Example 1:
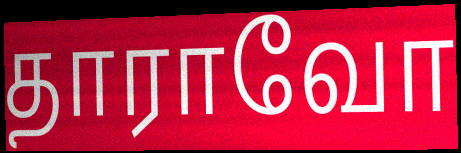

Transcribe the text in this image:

தாராவோ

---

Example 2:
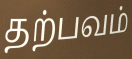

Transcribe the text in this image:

தற்பவம்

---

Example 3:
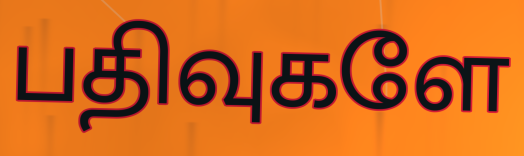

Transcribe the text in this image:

பதிவுகளே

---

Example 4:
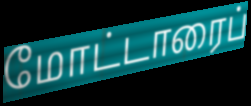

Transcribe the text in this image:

மோட்டாரைப்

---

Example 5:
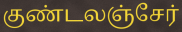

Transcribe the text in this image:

குண்டலஞ்சேர்